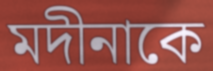
মদীনাকে